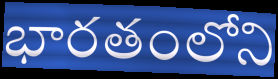
భారతంలోని